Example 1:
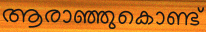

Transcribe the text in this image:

ആരാഞ്ഞുകൊണ്ട്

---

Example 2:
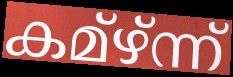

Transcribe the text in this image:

കമ്ഴ്ന്ന്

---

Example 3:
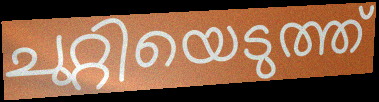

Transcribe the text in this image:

ചുറ്റിയെടുത്ത്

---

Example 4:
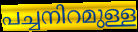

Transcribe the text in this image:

പച്ചനിറമുള്ള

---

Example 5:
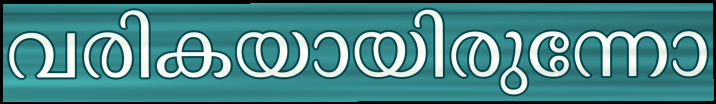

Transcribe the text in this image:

വരികയായിരുന്നോ